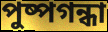
পুষ্পগন্ধা